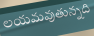
లయమవుతున్నది